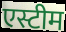
एस्टीम